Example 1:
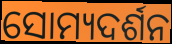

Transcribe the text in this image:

ସୋମ୍ଯଦର୍ଶନ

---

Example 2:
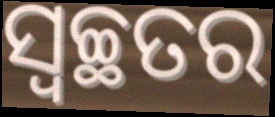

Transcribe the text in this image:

ସ୍ଵଚ୍ଛତର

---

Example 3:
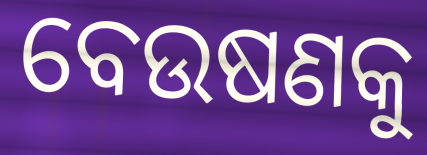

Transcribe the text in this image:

ବେଉଷଣକୁ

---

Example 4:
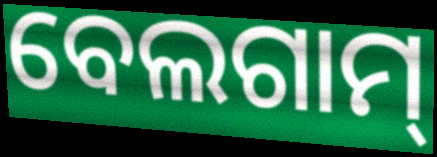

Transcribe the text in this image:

ବେଲଗାମ୍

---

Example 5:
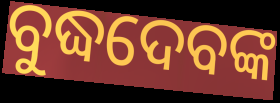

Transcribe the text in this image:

ବୁଦ୍ଧଦେବଙ୍କ